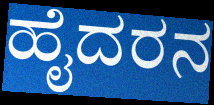
ಹೈದರನ